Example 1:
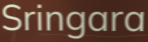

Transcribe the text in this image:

Sringara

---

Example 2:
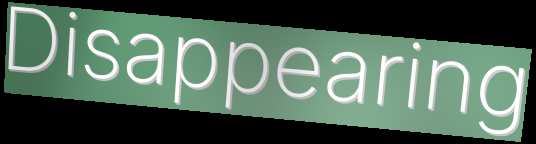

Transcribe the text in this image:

Disappearing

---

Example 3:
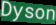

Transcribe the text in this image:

Dyson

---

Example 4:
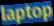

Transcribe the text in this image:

laptop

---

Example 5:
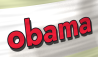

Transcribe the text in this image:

obama